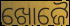
ଖୋଜୈ